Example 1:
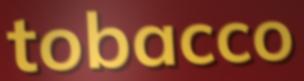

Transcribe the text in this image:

tobacco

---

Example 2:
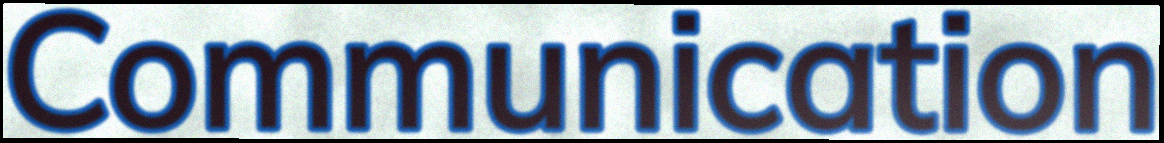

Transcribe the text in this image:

Communication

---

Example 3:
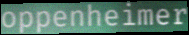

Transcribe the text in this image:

oppenheimer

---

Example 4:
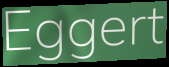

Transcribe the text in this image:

Eggert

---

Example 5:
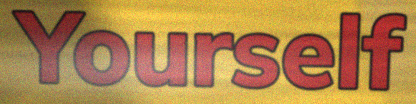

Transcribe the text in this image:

Yourself